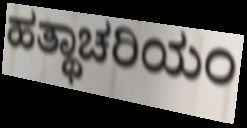
ಹತ್ಥಾಚರಿಯಂ